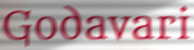
Godavari